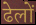
ढेलों